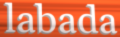
labada